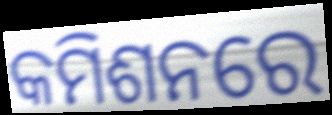
କମିଶନରେ